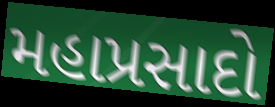
મહાપ્રસાદો